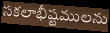
సకలాభీష్టములను